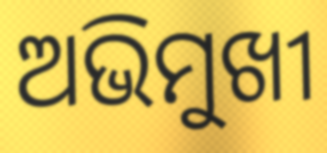
ଅଭିମୁଖୀ